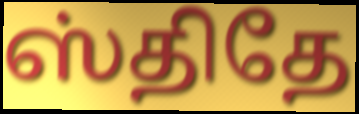
ஸ்திதே